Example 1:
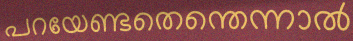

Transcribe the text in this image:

പറയേണ്ടതെന്തെന്നാൽ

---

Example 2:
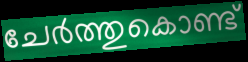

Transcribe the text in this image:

ചേർത്തുകൊണ്ട്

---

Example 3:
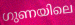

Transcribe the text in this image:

ഗുണയിലെ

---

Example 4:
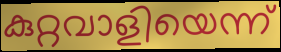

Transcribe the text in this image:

കുറ്റവാളിയെന്ന്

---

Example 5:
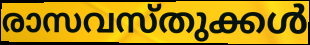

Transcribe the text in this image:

രാസവസ്തുക്കൾ